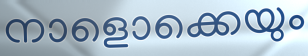
നാളൊക്കെയും